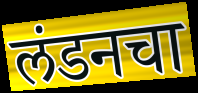
लंडनचा